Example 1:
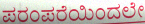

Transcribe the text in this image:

ಪರಂಪರೆಯಿಂದಲೇ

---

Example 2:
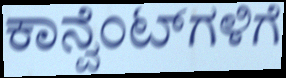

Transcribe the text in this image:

ಕಾನ್ವೆಂಟ್‌ಗಳಿಗೆ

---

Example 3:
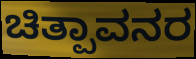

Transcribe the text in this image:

ಚಿತ್ಪಾವನರ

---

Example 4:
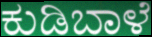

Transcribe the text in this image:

ಕುಡಿಬಾಳೆ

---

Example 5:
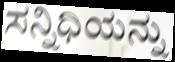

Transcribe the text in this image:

ಸನ್ನಿಧಿಯನ್ನು